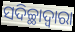
ସଦିଚ୍ଛାଦ୍ୱାରା